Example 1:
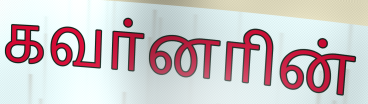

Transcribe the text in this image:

கவர்னரின்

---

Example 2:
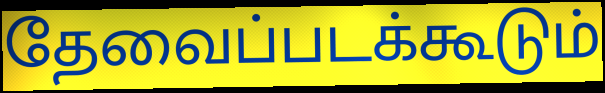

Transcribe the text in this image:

தேவைப்படக்கூடும்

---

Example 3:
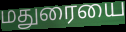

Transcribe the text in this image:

மதுரையை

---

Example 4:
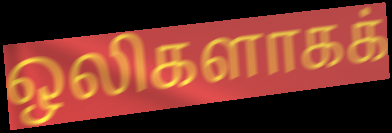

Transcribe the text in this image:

ஒலிகளாகக்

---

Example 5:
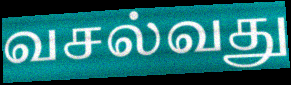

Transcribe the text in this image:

வசல்வது